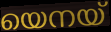
യെനയ്